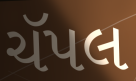
ચૅપલ